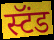
स्टॅंड